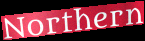
Northern